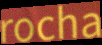
rocha